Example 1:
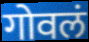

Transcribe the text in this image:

गोवलं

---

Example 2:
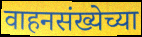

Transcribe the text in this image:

वाहनसंख्येच्या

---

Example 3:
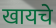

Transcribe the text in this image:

खायचे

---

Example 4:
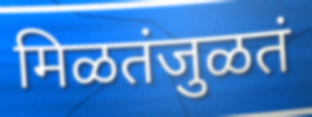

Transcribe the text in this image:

मिळतंजुळतं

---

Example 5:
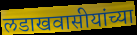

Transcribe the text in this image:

लडाखवासीयांच्या